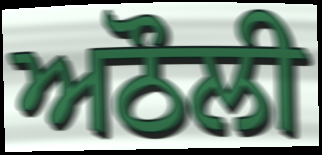
ਅਠੌਲੀ